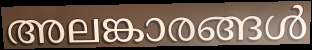
അലങ്കാരങ്ങൾ